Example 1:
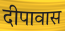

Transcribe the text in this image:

दीपावास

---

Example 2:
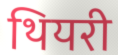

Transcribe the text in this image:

थियरी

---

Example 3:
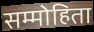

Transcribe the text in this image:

सम्मोहिता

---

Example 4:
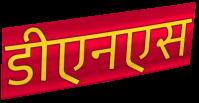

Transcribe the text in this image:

डीएनएस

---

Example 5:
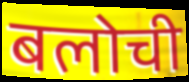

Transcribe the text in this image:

बलोची